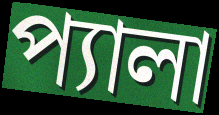
প্যালা